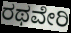
ರಥವೇರಿ